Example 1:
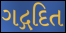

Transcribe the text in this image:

ગદ્ગદિત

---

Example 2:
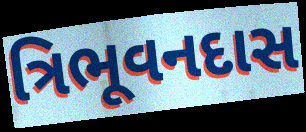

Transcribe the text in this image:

ત્રિભૂવનદાસ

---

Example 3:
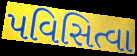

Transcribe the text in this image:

પવિસિત્વા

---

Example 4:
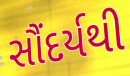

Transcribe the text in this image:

સૌંદર્યથી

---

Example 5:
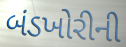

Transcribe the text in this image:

બંડખોરીની